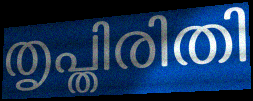
തൃപ്തിരിതി